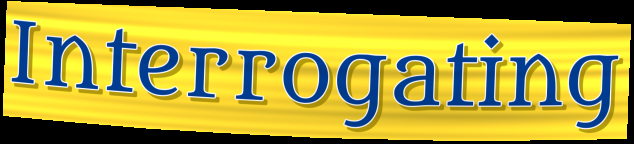
Interrogating